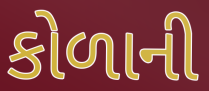
કોળાની